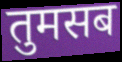
तुमसब